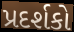
પ્રદર્શકો